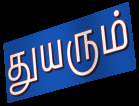
துயரும்